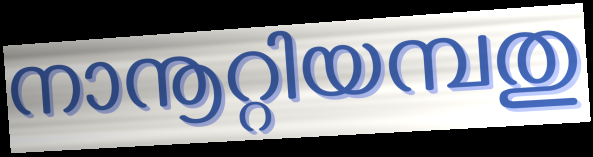
നാനൂറ്റിയമ്പതു